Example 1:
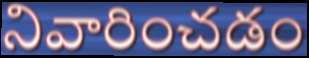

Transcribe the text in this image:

నివారించడం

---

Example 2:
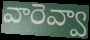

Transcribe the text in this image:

వారెవ్వా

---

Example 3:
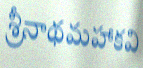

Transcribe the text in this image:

శ్రీనాథమహాకవి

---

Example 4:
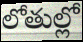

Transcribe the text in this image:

లోతుల్లో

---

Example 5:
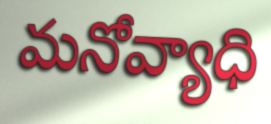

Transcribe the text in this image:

మనోవ్యాధి